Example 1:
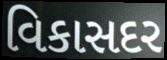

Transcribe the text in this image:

વિકાસદર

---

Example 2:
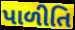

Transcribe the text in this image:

પાળીતિ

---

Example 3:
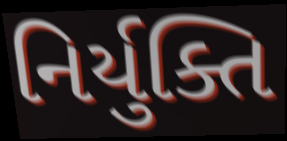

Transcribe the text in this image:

નિર્યુક્તિ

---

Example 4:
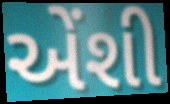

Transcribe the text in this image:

એંશી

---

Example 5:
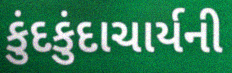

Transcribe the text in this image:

કુંદકુંદાચાર્યની